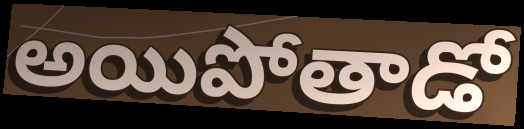
అయిపోతాడో